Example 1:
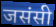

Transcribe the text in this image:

जसंसी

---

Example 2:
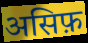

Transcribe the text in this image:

असिफ़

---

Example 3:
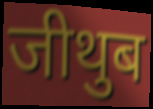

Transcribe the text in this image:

जीथुब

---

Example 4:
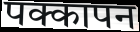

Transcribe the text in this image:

पक्कापन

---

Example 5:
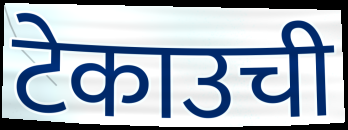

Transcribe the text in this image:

टेकाउची